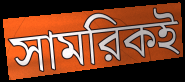
সামরিকই